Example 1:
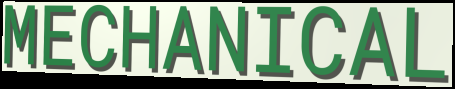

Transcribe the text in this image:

MECHANICAL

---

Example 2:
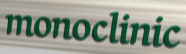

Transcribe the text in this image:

monoclinic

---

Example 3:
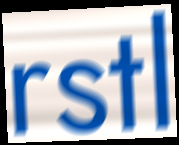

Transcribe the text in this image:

rstl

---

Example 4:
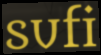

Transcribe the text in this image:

sufi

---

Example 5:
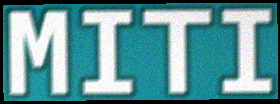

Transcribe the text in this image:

MITI